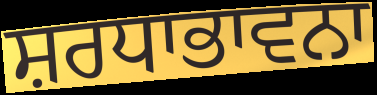
ਸ਼ਰਧਾਭਾਵਨਾ